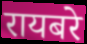
रायबरे